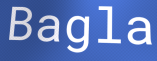
Bagla